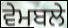
ਵੇਮਬਲੇ